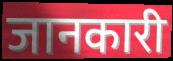
जानकारी